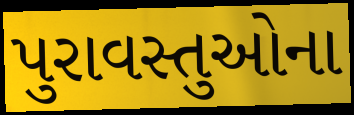
પુરાવસ્તુઓના